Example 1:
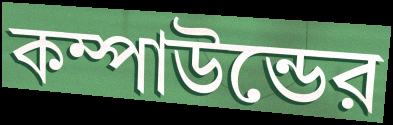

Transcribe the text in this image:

কম্পাউন্ডের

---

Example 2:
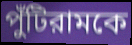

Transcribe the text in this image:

পুঁটিরামকে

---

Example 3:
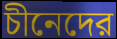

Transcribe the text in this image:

চীনেদের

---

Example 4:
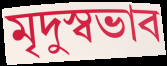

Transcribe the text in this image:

মৃদুস্বভাব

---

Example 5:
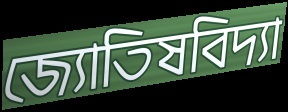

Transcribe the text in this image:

জ্যোতিষবিদ্যা